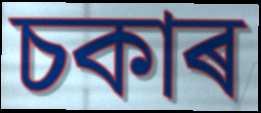
চকাৰ